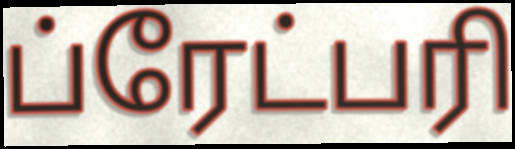
ப்ரேட்பரி